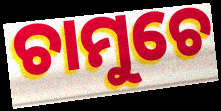
ଚାମୁଚେ